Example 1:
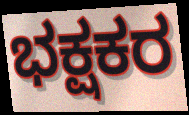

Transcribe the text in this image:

ಭಕ್ಷಕರ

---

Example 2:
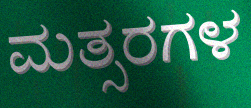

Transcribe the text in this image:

ಮತ್ಸರಗಳ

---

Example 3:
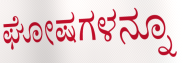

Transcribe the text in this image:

ಘೋಷಗಳನ್ನೂ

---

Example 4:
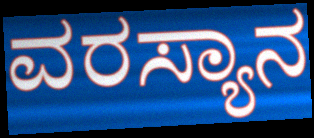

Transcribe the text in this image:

ವರಸ್ಯಾನ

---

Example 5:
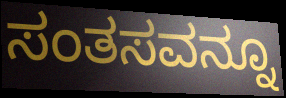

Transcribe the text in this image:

ಸಂತಸವನ್ನೂ